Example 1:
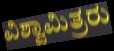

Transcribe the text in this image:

ವಿಶ್ವಾಮಿತ್ರರು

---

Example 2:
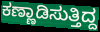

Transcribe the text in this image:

ಕಣ್ಣಾಡಿಸುತ್ತಿದ್ದ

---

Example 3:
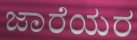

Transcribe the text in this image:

ಜಾರೆಯರ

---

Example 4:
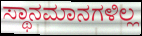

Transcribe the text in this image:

ಸ್ಥಾನಮಾನಗಳಿಲ್ಲ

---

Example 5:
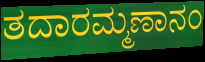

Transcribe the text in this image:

ತದಾರಮ್ಮಣಾನಂ